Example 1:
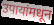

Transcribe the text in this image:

उपायांमधून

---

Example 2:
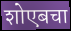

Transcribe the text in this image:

शोएबचा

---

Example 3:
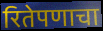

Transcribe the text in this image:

रितेपणाचा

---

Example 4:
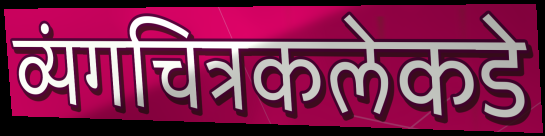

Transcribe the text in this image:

व्यंगचित्रकलेकडे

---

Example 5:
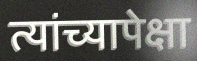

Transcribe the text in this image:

त्यांच्यापेक्षा